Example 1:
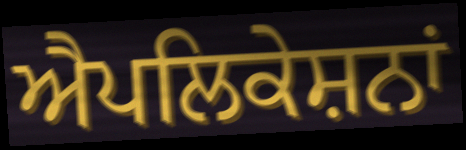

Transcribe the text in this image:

ਐਪਲਿਕੇਸ਼ਨਾਂ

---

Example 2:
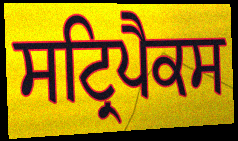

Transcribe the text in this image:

ਸਟ੍ਰਿਪੈਕਸ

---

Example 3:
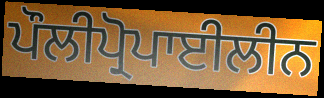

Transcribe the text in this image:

ਪੌਲੀਪ੍ਰੋਪਾਈਲੀਨ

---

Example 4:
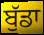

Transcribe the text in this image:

ਬੁੱਡਾ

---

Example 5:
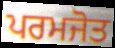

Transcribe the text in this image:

ਪਰਮਜੋਤ